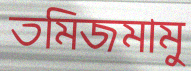
তমিজমামু